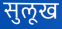
सुलूख